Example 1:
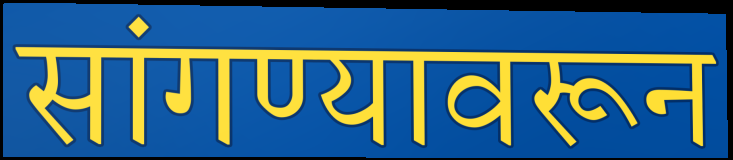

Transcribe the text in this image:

सांगण्यावरून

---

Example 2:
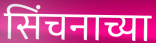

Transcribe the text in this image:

सिंचनाच्या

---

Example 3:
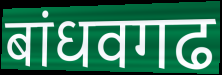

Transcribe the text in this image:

बांधवगढ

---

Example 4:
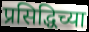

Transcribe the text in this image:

प्रसिद्धिच्या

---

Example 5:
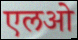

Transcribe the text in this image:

एलओ